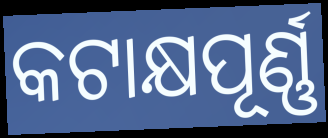
କଟାକ୍ଷପୂର୍ଣ୍ଣ